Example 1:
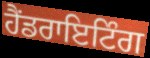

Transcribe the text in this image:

ਹੈਂਡਰਾਇਟਿੰਗ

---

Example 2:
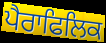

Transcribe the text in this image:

ਪੈਰਾਫਿਲਿਕ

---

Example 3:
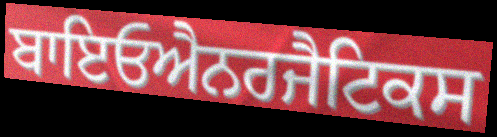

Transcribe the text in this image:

ਬਾਇਓਐਨਰਜੈਟਿਕਸ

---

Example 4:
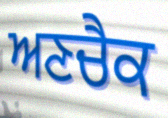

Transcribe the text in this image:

ਅਣਚੈਕ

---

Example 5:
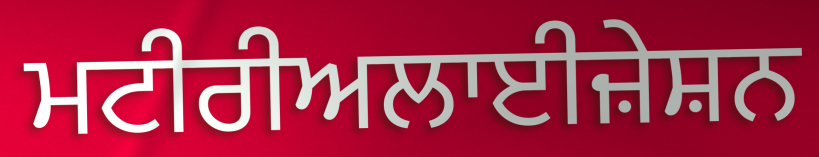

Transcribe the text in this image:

ਮਟੀਰੀਅਲਾਈਜ਼ੇਸ਼ਨ